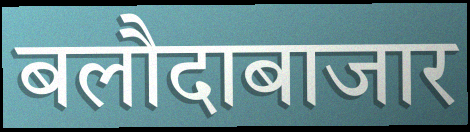
बलौदाबाजार